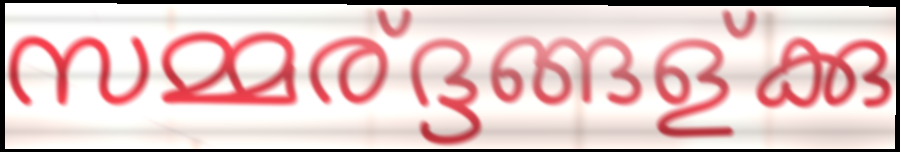
സമ്മര്ദ്ദങ്ങള്ക്കു